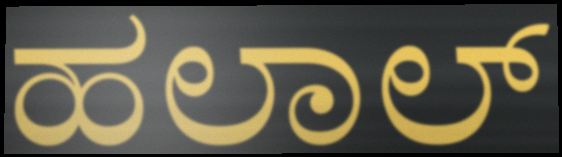
ಹಲಾಲ್